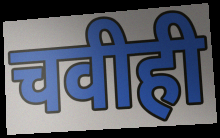
चवीही